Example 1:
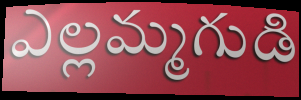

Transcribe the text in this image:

ఎల్లమ్మగుడి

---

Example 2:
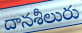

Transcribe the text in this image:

దానశీలురు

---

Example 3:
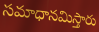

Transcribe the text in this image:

సమాధానమిస్తారు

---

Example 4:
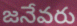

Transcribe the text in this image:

జనేవరు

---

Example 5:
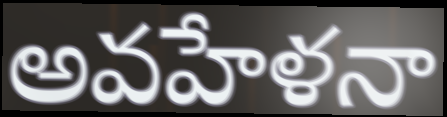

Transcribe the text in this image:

అవహేళనా